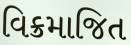
વિક્રમાજિત